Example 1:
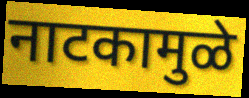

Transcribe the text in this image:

नाटकामुळे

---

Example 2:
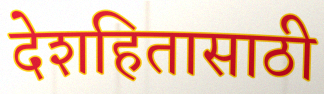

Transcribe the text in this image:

देशहितासाठी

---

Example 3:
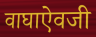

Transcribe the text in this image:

वाघाऐवजी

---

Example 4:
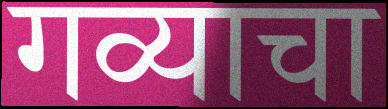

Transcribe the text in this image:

गव्याचा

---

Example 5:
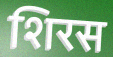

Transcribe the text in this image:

शिरस